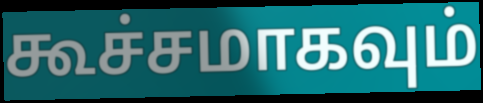
கூச்சமாகவும்